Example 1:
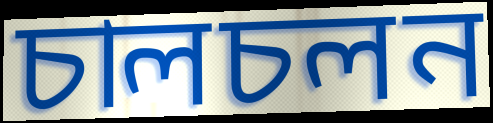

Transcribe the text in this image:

চালচলন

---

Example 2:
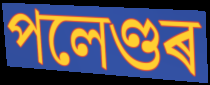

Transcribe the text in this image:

পলেণ্ডৰ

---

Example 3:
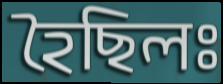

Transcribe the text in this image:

হৈছিলঃ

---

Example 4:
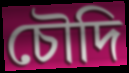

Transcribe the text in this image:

চৌদি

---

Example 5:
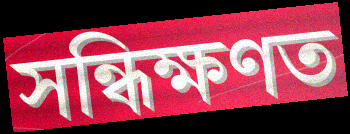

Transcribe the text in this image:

সন্ধিক্ষণত